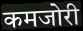
कमजोरी